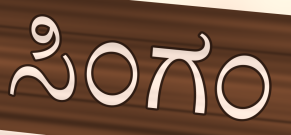
ಸಿಂಗಂ